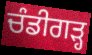
ਚੰਡੀਗਡ਼੍ਹ